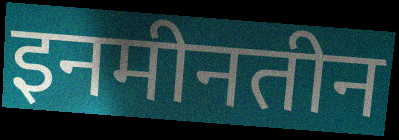
इनमीनतीन